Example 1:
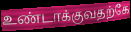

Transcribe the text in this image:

உண்டாக்குவதற்கே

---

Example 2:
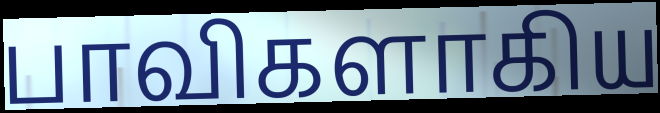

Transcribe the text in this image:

பாவிகளாகிய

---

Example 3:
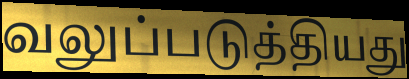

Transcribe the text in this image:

வலுப்படுத்தியது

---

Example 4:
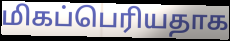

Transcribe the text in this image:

மிகப்பெரியதாக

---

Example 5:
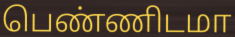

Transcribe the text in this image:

பெண்ணிடமா